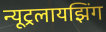
न्यूट्रलायझिंग